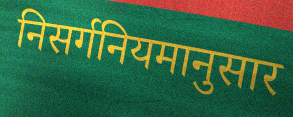
निसर्गनियमानुसार